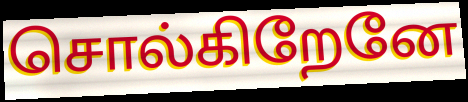
சொல்கிறேனே